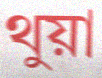
থুয়া